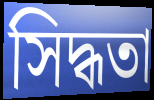
সিদ্ধতা